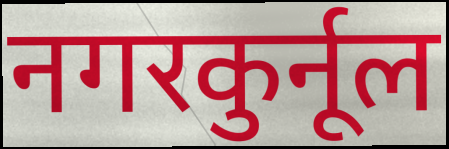
नगरकुर्नूल